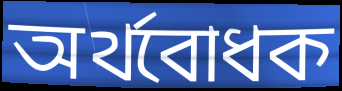
অর্থবোধক